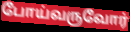
போய்வருவோர்